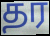
தர